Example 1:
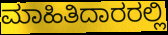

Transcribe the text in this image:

ಮಾಹಿತಿದಾರರಲ್ಲಿ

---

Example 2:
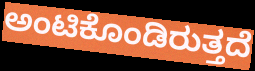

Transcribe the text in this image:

ಅಂಟಿಕೊಂಡಿರುತ್ತದೆ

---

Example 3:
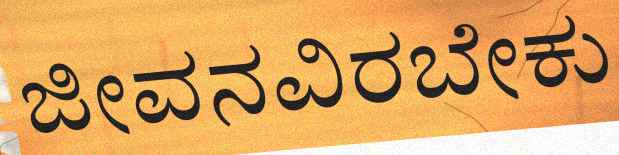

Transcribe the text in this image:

ಜೀವನವಿರಬೇಕು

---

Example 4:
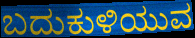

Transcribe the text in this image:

ಬದುಕುಳಿಯುವ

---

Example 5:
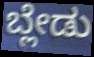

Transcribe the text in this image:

ಬ್ಲೇಡು